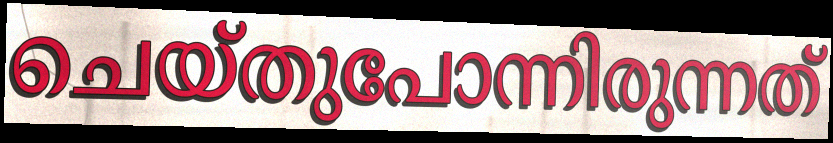
ചെയ്തുപോന്നിരുന്നത്